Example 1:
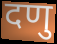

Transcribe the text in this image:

दणु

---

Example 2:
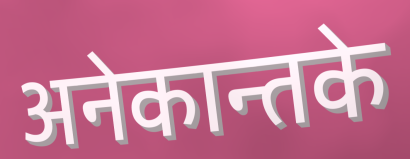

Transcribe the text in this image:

अनेकान्तके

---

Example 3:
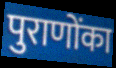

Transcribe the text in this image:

पुराणोंका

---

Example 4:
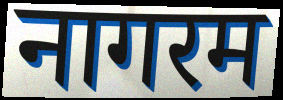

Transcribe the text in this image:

नागरम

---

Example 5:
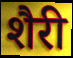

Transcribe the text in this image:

शैरी